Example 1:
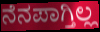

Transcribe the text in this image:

ನೆನಪಾಗ್ತಿಲ್ಲ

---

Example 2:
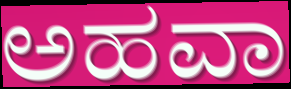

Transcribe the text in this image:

ಅಹವಾ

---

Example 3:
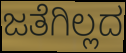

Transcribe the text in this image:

ಜತೆಗಿಲ್ಲದ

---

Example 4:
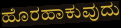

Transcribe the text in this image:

ಹೊರಹಾಕುವುದು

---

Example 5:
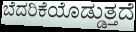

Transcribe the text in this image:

ಬೆದರಿಕೆಯೊಡ್ಡುತ್ತದೆ